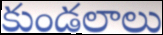
కుండలాలు